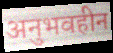
अनुभवहीन